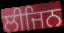
ਲੀਜਿਨ